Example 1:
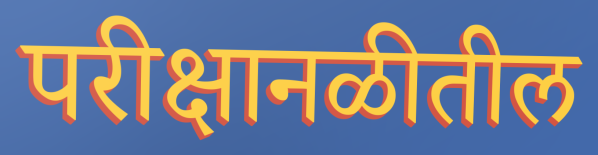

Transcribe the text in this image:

परीक्षानळीतील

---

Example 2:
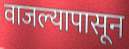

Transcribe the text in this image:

वाजल्यापासून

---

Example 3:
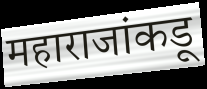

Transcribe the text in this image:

महाराजांकडू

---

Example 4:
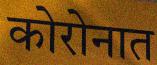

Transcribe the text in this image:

कोरोनात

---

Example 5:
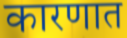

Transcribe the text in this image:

कारणात